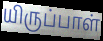
யிருப்பாள்